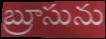
బ్రూసును